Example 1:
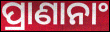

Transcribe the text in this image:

ପ୍ରାଣାନାଂ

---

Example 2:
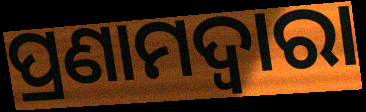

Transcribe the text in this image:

ପ୍ରଣାମଦ୍ୱାରା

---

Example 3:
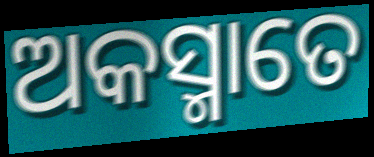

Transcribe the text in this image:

ଅକସ୍ମାତେ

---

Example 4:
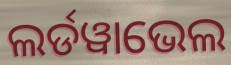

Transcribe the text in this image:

ଲର୍ଡୱାଭେଲ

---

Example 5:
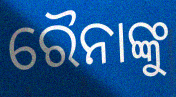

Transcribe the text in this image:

ରୈନାଙ୍କୁ